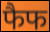
फैफ